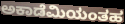
ಅಕಾಡೆಮಿಯಂತಹ